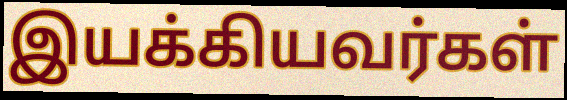
இயக்கியவர்கள்